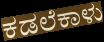
ಕಡಲೆಕಾಳು